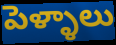
పెళ్ళాలు